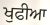
ਖੁਫੀਆ